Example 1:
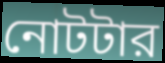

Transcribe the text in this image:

নোটটার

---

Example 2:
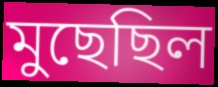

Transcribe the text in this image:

মুছেছিল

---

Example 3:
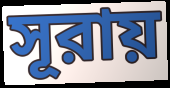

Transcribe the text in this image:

সূরায়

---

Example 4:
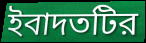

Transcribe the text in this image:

ইবাদতটির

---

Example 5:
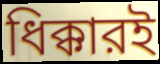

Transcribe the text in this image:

ধিক্কারই